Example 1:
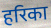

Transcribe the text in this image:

हरिका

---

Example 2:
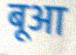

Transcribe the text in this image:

बूआ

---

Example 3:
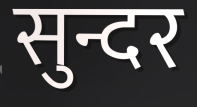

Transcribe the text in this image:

सुन्दर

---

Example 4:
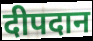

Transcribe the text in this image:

दीपदान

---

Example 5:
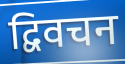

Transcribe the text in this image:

द्विवचन